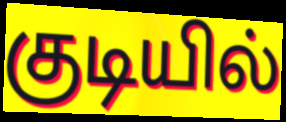
குடியில்